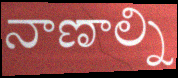
నాణాల్ని